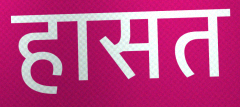
हासत